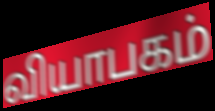
வியாபகம்